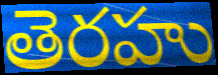
తెరహు